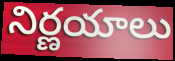
నిర్ణయాలు